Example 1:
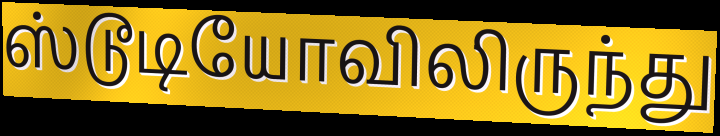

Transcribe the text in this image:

ஸ்டூடியோவிலிருந்து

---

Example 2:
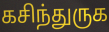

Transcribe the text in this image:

கசிந்துருக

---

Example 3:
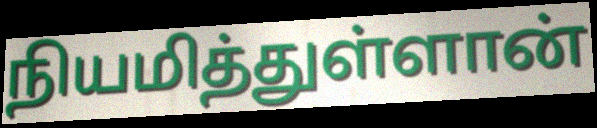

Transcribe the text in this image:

நியமித்துள்ளான்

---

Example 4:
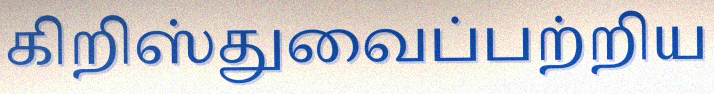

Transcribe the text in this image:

கிறிஸ்துவைப்பற்றிய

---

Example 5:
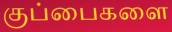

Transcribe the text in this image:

குப்பைகளை